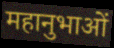
महानुभाओं